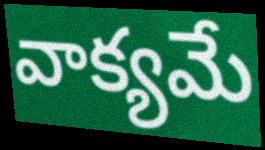
వాక్యమే